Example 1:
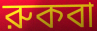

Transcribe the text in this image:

রুকবা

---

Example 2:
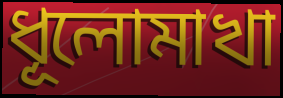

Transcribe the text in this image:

ধূলোমাখা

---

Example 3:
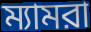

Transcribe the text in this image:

ম্যামরা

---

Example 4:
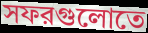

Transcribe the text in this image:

সফরগুলোতে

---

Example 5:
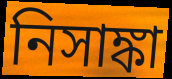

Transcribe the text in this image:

নিসাঙ্কা